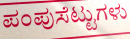
ಪಂಪುಸೆಟ್ಟುಗಳು